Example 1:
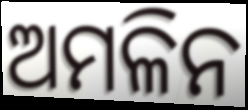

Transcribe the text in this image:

ଅମଳିନ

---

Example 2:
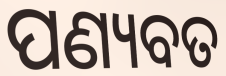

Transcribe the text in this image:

ପଣ୍ୟବତ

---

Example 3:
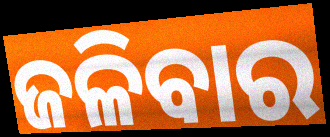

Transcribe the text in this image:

ଜଳିବାର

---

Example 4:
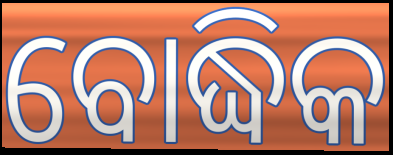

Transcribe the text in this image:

ବୋଦ୍ଧିକ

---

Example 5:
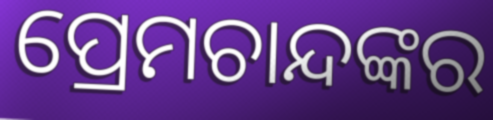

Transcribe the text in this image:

ପ୍ରେମଚାନ୍ଦଙ୍କର